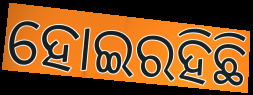
ହୋଇରହିଛି